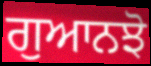
ਗੁਆਨਝੋ